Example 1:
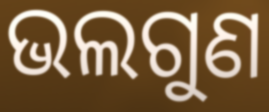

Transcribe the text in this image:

ଭଲଗୁଣ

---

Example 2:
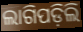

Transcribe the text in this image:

ଲାଗିପଡ଼ିଲି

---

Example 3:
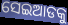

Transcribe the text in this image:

ସେଇଆଡକୁ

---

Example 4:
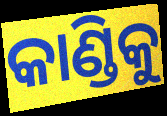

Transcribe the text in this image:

କାଣ୍ଡିକୁ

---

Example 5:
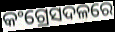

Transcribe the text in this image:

କଂଗ୍ରେସଦଳରେ